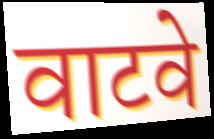
वाटवे